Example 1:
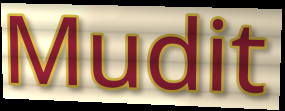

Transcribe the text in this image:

Mudit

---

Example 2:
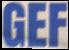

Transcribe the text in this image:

GEF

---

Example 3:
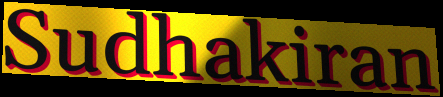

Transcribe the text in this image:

Sudhakiran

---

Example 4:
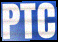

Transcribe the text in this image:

PTC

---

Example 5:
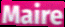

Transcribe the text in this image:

Maire